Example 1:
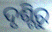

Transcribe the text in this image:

ଦୃଶ୍ଟିରୁ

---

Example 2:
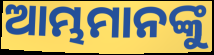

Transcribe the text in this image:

ଆମ୍ଭମାନଙ୍କୁ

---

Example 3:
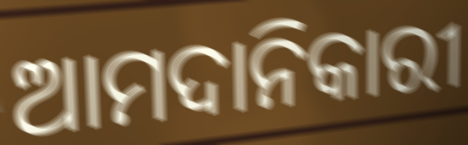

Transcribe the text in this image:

ଆମଦାନିକାରୀ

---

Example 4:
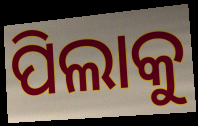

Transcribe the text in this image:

ପିଲାକୁ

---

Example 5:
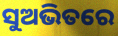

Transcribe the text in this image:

ସୁଅଭିତରେ